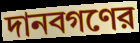
দানবগণের